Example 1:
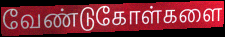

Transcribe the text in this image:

வேண்டுகோள்களை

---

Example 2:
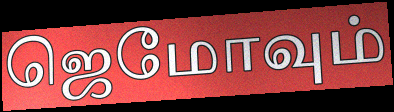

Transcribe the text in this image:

ஜெமோவும்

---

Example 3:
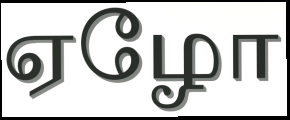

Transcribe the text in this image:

ஏழோ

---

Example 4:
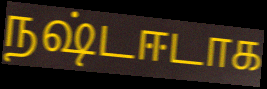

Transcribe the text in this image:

நஷ்டஈடாக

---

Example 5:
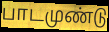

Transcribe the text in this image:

பாடமுண்டு